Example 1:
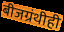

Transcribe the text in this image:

बीजग्रंथीही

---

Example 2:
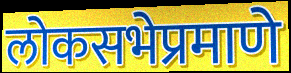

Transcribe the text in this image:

लोकसभेप्रमाणे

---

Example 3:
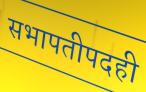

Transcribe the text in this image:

सभापतीपदही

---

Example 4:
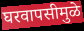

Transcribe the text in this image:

घरवापसीमुळे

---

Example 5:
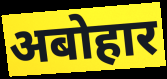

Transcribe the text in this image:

अबोहार